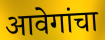
आवेगांचा